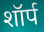
शॉर्प